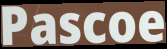
Pascoe